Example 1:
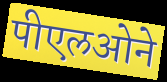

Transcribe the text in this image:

पीएलओने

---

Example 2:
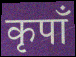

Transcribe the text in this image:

कृपाँ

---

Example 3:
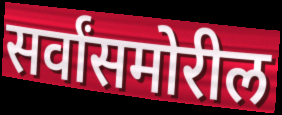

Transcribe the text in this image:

सर्वांसमोरील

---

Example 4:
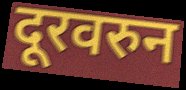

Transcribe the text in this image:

दूरवरुन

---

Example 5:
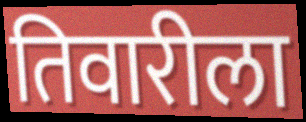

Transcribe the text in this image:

तिवारीला